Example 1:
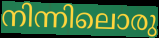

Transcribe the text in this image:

നിന്നിലൊരു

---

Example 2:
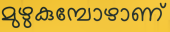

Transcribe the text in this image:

മുഴുകുമ്പോഴാണ്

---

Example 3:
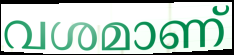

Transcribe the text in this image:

വശമാണ്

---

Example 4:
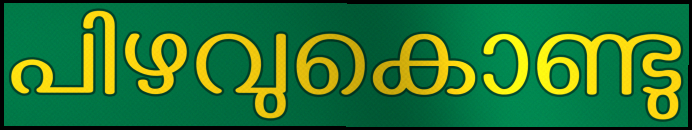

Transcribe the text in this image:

പിഴവുകൊണ്ടു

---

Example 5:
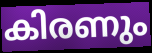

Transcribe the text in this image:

കിരണും